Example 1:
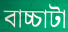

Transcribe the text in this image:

বাচ্চাটা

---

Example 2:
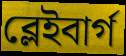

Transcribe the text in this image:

ব্লেইবার্গ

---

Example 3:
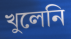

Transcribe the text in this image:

খুলেনি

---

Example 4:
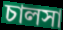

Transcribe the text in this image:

চালসা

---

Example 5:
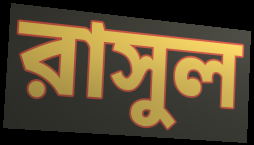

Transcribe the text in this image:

রাসুল